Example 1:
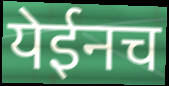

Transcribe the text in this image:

येईनच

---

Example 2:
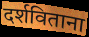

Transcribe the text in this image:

दर्शविताना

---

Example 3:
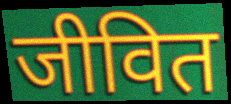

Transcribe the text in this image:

जीवित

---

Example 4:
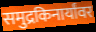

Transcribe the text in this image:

समुद्रकिनार्यांवर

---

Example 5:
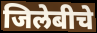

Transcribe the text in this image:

जिलेबीचे